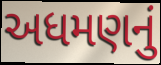
અધમણનું